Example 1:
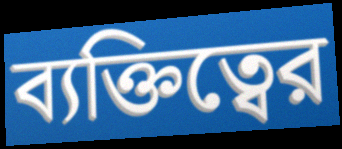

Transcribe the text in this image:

ব্যক্তিত্বের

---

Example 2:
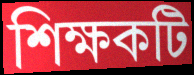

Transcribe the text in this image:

শিক্ষকটি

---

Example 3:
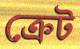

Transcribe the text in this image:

ক্রেট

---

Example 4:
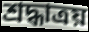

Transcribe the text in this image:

শ্রদ্ধাত্রয়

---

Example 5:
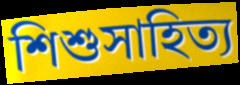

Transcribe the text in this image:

শিশুসাহিত্য